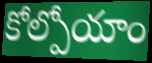
కోల్పోయాం